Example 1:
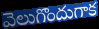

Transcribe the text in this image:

వెలుగొందుగాక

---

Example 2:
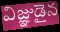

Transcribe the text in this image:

విజ్ఞుడైన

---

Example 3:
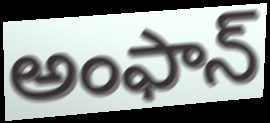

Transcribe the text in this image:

అంఫాన్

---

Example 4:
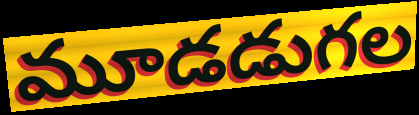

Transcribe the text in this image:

మూడడుగల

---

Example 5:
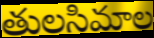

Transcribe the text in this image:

తులసిమాల